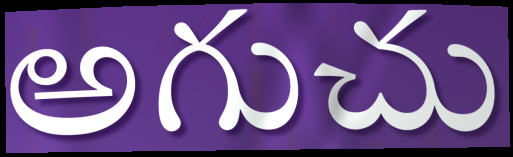
అగుచు